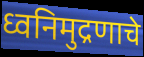
ध्वनिमुद्रणाचे